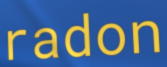
radon